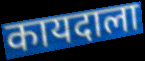
कायदाला